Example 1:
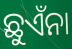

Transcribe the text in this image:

ଛୁଏଁନା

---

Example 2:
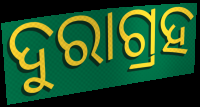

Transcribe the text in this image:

ଦୁରାଗ୍ରହ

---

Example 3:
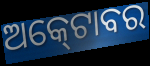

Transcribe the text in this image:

ଅକ୍‍ଟୋବର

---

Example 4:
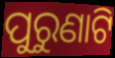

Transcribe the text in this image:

ପୁରୁଣାଟି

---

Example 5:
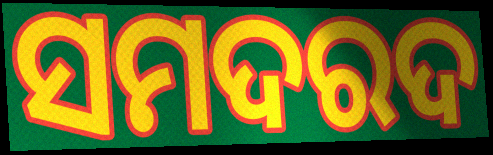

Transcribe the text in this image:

ସମଦରଦ